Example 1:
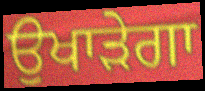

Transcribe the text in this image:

ਉਖਾੜੇਗਾ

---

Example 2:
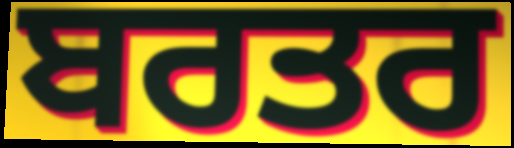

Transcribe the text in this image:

ਬਰਤਰ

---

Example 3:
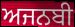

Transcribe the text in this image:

ਅਜਨਬੀ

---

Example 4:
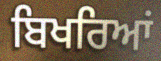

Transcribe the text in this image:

ਬਿਖਰਿਆਂ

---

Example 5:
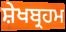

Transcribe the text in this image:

ਸ਼ੇਖਬ੍ਰਹਮ